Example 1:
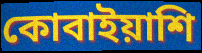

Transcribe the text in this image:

কোবাইয়াশি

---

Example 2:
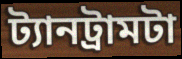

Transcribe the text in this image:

ট্যানট্রামটা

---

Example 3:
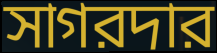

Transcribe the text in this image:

সাগরদার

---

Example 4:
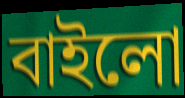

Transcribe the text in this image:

বাইলো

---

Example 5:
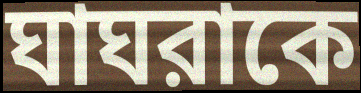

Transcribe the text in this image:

ঘাঘরাকে